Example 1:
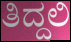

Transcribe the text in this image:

ತಿದ್ದಲಿ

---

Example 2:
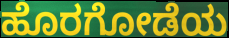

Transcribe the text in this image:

ಹೊರಗೋಡೆಯ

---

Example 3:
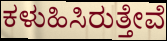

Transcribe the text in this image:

ಕಳುಹಿಸಿರುತ್ತೇವೆ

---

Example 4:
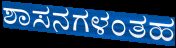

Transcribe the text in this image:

ಶಾಸನಗಳಂತಹ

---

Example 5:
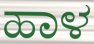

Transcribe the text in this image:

ಹಾಳ